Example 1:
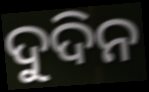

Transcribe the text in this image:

ଦୁଦିନ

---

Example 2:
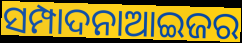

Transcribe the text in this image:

ସମ୍ପାଦନାଆଇଜର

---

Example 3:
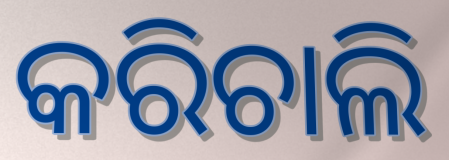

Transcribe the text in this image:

କରିଚାଲି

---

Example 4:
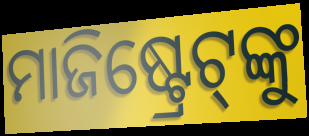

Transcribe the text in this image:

ମାଜିଷ୍ଟ୍ରେଟ୍‌ଙ୍କୁ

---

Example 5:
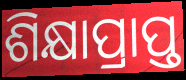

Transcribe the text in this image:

ଶିକ୍ଷାପ୍ରାପ୍ତ